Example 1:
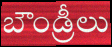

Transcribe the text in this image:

బౌండ్రీలు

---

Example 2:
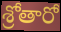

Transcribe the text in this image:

శ్రోతారో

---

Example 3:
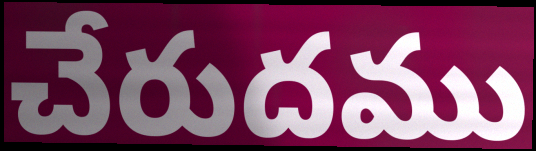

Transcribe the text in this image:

చేరుదము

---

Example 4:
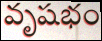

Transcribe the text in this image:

వృషభం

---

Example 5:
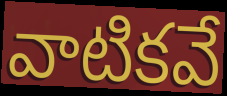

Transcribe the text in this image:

వాటికవే